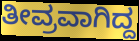
ತೀವ್ರವಾಗಿದ್ದ